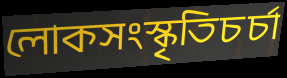
লোকসংস্কৃতিচর্চা